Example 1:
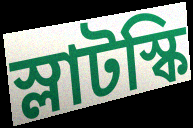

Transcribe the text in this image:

স্লাটস্কি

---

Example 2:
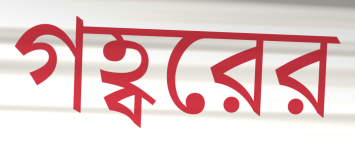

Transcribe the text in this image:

গহ্বরের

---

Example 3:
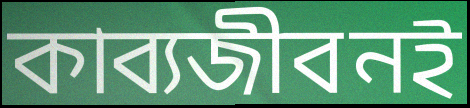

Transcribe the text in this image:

কাব্যজীবনই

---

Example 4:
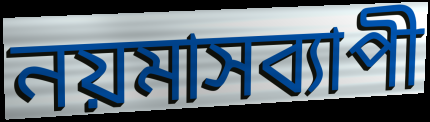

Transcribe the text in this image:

নয়মাসব্যাপী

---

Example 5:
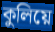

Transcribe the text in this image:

কুলিয়ে